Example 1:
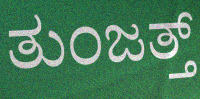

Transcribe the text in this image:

ತುಂಜತ್ತ್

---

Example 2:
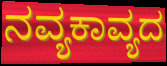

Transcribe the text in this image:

ನವ್ಯಕಾವ್ಯದ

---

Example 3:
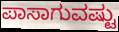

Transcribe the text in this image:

ಪಾಸಾಗುವಷ್ಟು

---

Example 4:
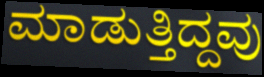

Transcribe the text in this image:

ಮಾಡುತ್ತಿದ್ದವು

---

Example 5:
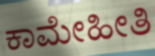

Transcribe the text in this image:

ಕಾಮೇಹೀತಿ